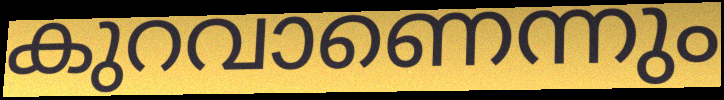
കുറവാണെന്നും